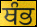
ਥੰਭ